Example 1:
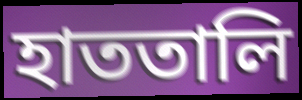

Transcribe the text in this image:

হাততালি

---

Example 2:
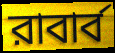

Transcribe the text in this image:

রাবার্ব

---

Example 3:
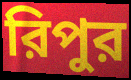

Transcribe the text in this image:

রিপুর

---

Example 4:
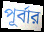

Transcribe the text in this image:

পূর্বার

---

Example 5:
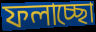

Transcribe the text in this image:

ফলাচ্ছো